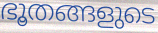
ഭൂതങ്ങളുടെ